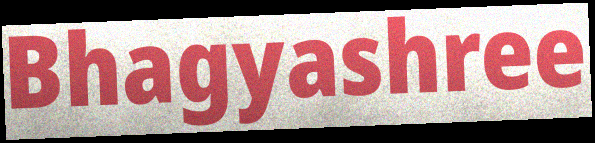
Bhagyashree